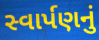
સ્વાર્પણનું